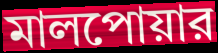
মালপোয়ার